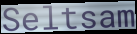
Seltsam